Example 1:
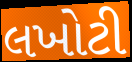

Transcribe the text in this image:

લખોટી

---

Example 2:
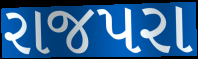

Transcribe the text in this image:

રાજપરા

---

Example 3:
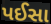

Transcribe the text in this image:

પઈસા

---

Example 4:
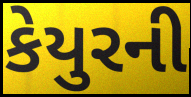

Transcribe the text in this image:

કેયુરની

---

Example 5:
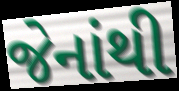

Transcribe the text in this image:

જેનાંથી